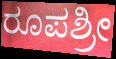
ರೂಪಶ್ರೀ